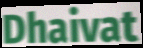
Dhaivat